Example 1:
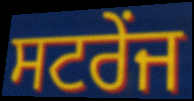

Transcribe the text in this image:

ਸਟਰੇਂਜ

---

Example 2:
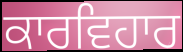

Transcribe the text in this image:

ਕਾਰਵਿਹਾਰ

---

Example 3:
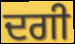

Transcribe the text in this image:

ਦਗੀ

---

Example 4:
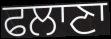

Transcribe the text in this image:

ਫਲਾਣਾ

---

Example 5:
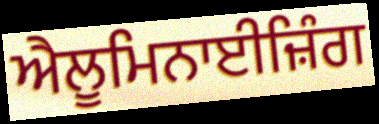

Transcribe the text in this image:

ਐਲੂਮਿਨਾਈਜ਼ਿੰਗ